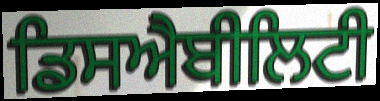
ਡਿਸਐਬੀਲਿਟੀ